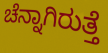
ಚೆನ್ನಾಗಿರುತ್ತೆ